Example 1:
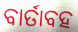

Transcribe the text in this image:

ବାର୍ତାବହ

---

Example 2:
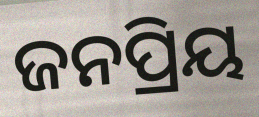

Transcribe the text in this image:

ଜନପ୍ରିୟ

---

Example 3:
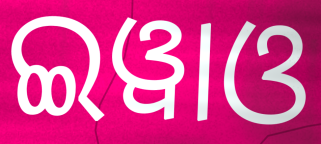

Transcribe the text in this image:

ଇୱାଓ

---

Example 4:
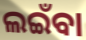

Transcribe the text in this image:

ଲଇଁବା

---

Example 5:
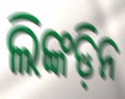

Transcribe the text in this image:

ଲିଙ୍କଡ଼ିନ